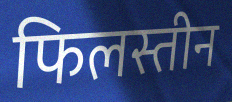
फिलस्तीन